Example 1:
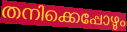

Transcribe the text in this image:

തനിക്കെപ്പോഴും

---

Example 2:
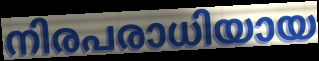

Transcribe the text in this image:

നിരപരാധിയായ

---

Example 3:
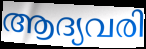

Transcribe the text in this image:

ആദ്യവരി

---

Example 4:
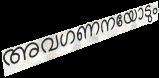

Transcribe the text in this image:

അവഗണനയോടും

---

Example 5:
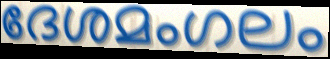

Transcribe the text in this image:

ദേശമംഗലം